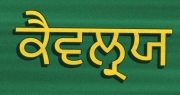
ਕੈਵਲ੍ਰਯ